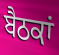
ਬੈਠਕਾਂ